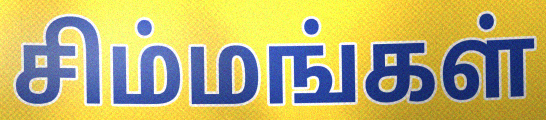
சிம்மங்கள்